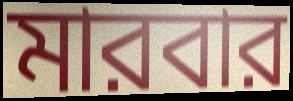
মারবার